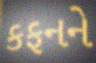
કફનને